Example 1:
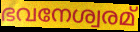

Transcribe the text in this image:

ഭവനേശ്വരമ്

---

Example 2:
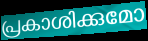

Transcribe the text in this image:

പ്രകാശിക്കുമോ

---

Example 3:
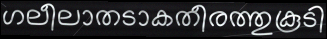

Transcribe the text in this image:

ഗലീലാതടാകതീരത്തുകൂടി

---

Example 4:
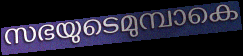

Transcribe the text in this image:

സഭയുടെമുമ്പാകെ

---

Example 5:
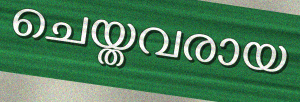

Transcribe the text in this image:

ചെയ്തവരായ